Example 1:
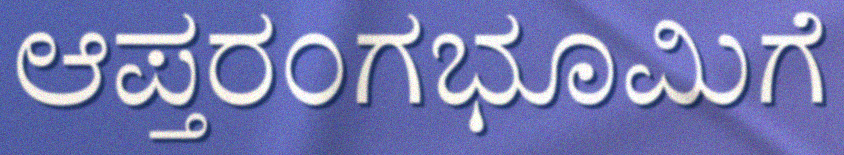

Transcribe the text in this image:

ಆಪ್ತರಂಗಭೂಮಿಗೆ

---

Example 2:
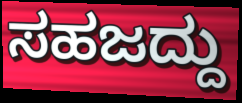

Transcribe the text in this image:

ಸಹಜದ್ದು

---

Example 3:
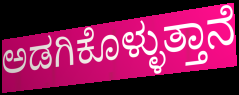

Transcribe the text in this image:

ಅಡಗಿಕೊಳ್ಳುತ್ತಾನೆ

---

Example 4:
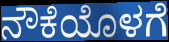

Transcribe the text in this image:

ನೌಕೆಯೊಳಗೆ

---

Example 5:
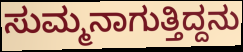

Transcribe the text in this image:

ಸುಮ್ಮನಾಗುತ್ತಿದ್ದನು